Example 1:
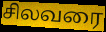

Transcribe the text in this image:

சிலவரை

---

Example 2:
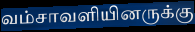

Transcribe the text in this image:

வம்சாவளியினருக்கு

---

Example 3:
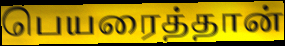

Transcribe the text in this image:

பெயரைத்தான்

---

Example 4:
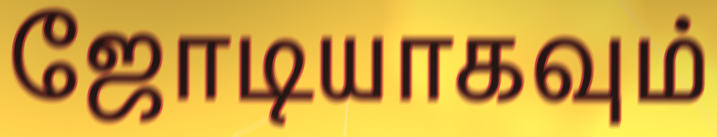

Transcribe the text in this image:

ஜோடியாகவும்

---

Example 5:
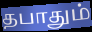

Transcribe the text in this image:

தபாதும்